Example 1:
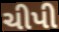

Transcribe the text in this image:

ચીપી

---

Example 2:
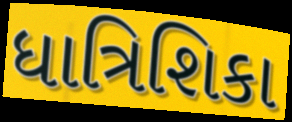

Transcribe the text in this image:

ધાત્રિશિકા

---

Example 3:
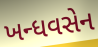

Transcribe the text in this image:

ખન્ધવસેન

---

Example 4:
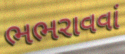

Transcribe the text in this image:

ભભરાવવાં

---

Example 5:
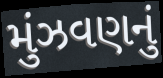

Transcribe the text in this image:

મુંઝવણનું